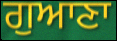
ਗੁਆਣਾ